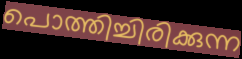
പൊത്തിച്ചിരിക്കുന്ന